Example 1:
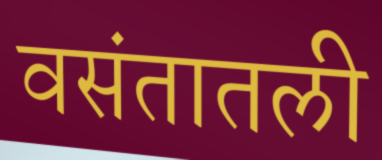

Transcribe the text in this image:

वसंतातली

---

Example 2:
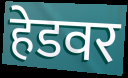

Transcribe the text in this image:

हेडवर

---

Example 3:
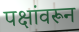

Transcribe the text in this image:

पक्षांवरून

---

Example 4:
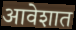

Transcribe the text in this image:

आवेशात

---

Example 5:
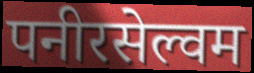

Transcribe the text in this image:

पनीरसेल्वम